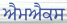
ਐਮਐਕਸ